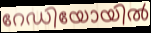
റേഡിയോയിൽ